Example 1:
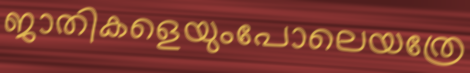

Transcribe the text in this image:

ജാതികളെയുംപോലെയത്രേ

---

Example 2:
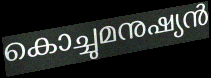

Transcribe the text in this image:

കൊച്ചുമനുഷ്യൻ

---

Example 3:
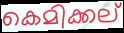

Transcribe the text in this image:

കെമിക്കല്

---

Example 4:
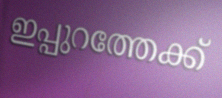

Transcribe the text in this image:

ഇപ്പുറത്തേക്ക്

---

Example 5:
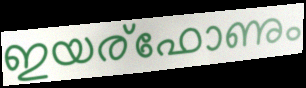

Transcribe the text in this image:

ഇയര്ഫോണും